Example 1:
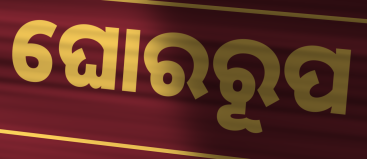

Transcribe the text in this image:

ଘୋରରୂପ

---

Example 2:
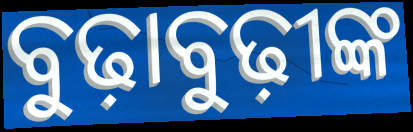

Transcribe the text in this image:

ବୁଢ଼ାବୁଢ଼ୀଙ୍କ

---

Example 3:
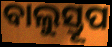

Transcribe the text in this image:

ବାଲୁସ୍ତୂପ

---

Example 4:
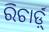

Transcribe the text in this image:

ରିଚାର୍ଡ଼୍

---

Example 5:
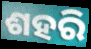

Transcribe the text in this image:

ଶହରି